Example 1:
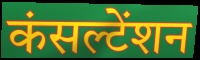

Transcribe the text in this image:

कंसल्टेंशन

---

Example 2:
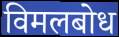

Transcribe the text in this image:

विमलबोध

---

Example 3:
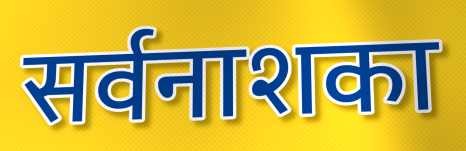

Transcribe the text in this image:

सर्वनाशका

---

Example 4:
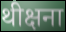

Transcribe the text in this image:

थीक्षना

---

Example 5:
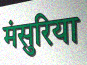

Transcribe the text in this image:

मंसुरिया